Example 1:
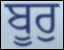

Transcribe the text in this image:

ਬੂਰੁ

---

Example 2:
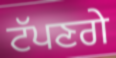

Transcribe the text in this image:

ਟੱਪਣਗੇ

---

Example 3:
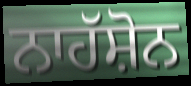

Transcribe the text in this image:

ਨਾਹੱਸ਼ੋਨ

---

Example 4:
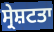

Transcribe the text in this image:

ਸ੍ਰੇਸ਼ਟਤਾ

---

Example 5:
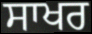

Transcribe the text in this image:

ਸਾਖਰ